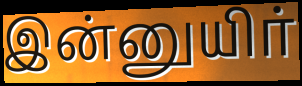
இன்னுயிர்